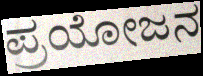
ಪ್ರಯೋಜನ